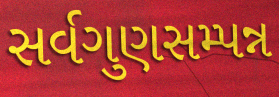
સર્વગુણસમ્પન્ન